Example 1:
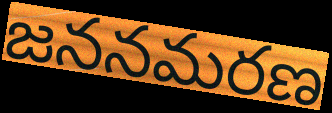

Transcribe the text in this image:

జననమరణ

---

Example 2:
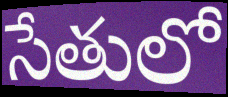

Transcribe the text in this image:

సేతులో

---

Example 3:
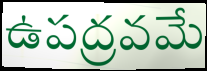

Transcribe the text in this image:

ఉపద్రవమే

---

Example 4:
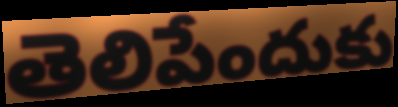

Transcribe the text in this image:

తెలిపేందుకు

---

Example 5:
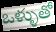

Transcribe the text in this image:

ఒళ్ళుతో